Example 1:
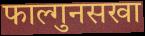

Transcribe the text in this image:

फाल्गुनसखा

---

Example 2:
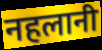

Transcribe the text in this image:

नहलानी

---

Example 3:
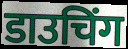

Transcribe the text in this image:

डाउचिंग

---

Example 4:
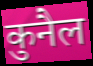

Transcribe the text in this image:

कुनैल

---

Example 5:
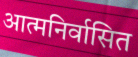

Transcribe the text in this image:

आत्मनिर्वासित